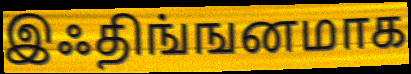
இஃதிங்ஙனமாக